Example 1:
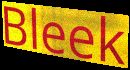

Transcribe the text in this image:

Bleek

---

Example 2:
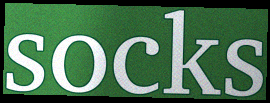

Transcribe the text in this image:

socks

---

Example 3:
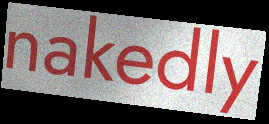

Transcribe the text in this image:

nakedly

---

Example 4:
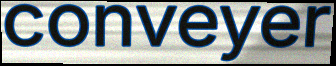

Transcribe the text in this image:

conveyer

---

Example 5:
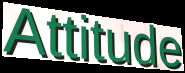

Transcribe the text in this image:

Attitude